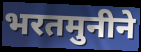
भरतमुनीने